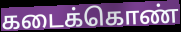
கடைக்கொண்